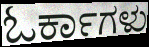
ಓರ್ಕಾಗಳು